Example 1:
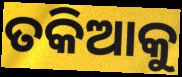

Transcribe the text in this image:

ତକିଆକୁ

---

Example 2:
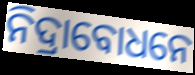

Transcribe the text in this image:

ନିଦ୍ରାବୋଧନେ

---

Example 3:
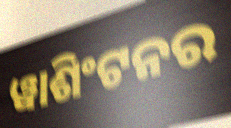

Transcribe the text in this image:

ୱାଶିଂଟନର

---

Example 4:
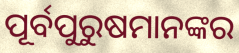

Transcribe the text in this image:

ପୂର୍ବପୁରୁଷମାନଙ୍କର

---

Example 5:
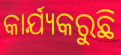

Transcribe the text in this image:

କାର୍ଯ୍ୟକରୁଛି